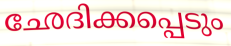
ഛേദിക്കപ്പെടും